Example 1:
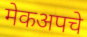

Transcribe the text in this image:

मेकअपचे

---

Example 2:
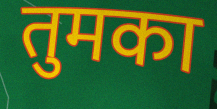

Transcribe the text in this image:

तुमका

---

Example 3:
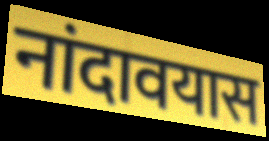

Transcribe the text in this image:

नांदावयास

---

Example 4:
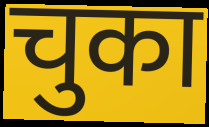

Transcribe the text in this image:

चुका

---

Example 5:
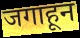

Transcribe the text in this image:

जगाहून